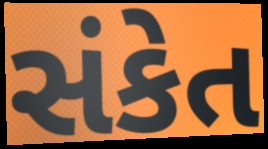
સંકેત